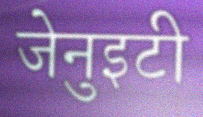
जेनुइटी